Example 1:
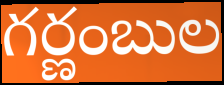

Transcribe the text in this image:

గర్ణంబుల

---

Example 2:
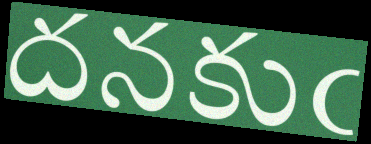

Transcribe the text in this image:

దనకుఁ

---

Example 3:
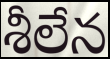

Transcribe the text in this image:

శీలేన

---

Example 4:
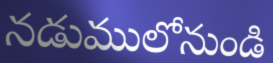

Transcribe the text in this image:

నడుములోనుండి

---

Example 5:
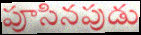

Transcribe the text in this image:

పూసినపుడు